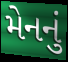
મેનનું